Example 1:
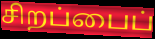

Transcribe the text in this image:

சிறப்பைப்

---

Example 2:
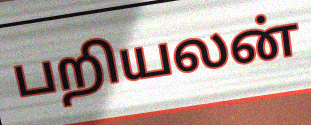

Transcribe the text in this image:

பறியலன்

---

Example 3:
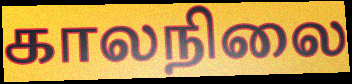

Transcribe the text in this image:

காலநிலை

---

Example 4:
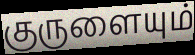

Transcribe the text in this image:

குருளையும்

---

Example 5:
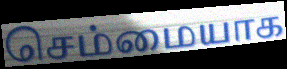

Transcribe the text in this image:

செம்மையாக